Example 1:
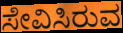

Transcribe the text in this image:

ಸೇವಿಸಿರುವ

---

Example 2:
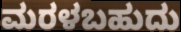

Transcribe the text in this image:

ಮರಳಬಹುದು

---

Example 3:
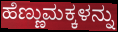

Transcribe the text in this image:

ಹೆಣ್ಣುಮಕ್ಕಳನ್ನು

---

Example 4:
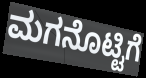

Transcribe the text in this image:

ಮಗನೊಟ್ಟಿಗೆ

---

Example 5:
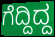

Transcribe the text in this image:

ಗೆದ್ದಿದ್ದ